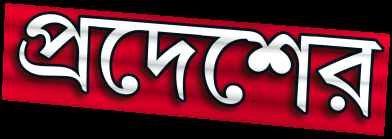
প্রদেশের